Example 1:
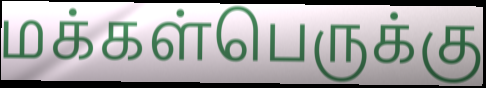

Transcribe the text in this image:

மக்கள்பெருக்கு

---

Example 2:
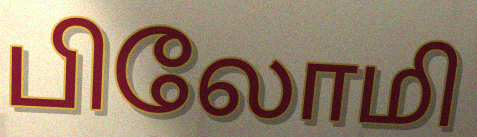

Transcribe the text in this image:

பிலோமி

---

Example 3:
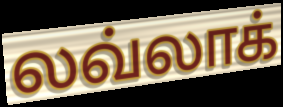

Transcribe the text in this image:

லவ்லாக்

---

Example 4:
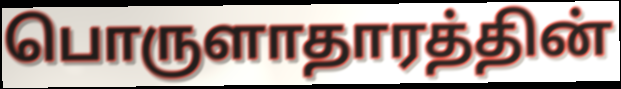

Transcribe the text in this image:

பொருளாதாரத்தின்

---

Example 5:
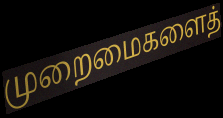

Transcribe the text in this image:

முறைமைகளைத்